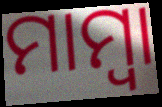
ମାମ୍ଵା